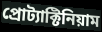
প্রোট্যাক্টিনিয়াম